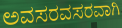
ಅವಸರವಸರವಾಗಿ